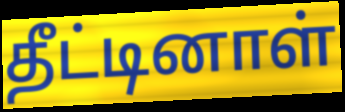
தீட்டினாள்